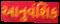
આનુવંશિક